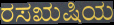
ರಸಋಷಿಯ